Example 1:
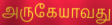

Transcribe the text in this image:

அருகேயாவது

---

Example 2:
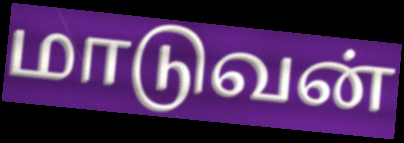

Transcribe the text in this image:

மாடுவன்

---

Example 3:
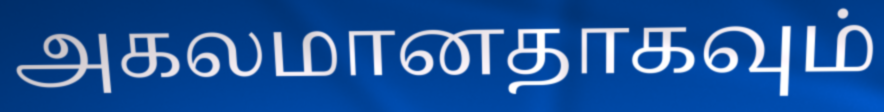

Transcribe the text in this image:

அகலமானதாகவும்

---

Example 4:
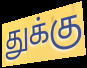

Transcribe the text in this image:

துக்கு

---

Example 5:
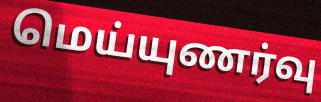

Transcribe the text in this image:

மெய்யுணர்வு